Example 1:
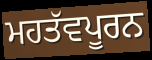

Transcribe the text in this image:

ਮਹਤੱਵਪੂਰਨ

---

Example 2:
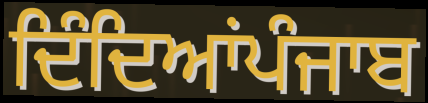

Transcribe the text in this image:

ਦਿੰਦਿਆਂਪੰਜਾਬ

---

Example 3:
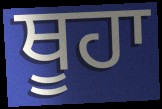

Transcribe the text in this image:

ਥੂਹਾ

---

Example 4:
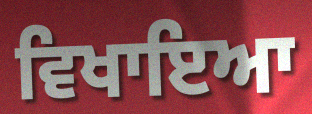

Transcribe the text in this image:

ਵਿਖਾਇਆ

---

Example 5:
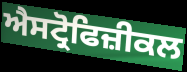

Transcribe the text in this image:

ਐਸਟ੍ਰੋਫਿਜ਼ੀਕਲ